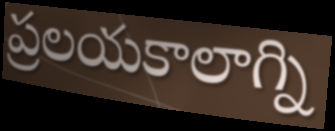
ప్రలయకాలాగ్ని